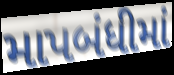
માપબંધીમાં